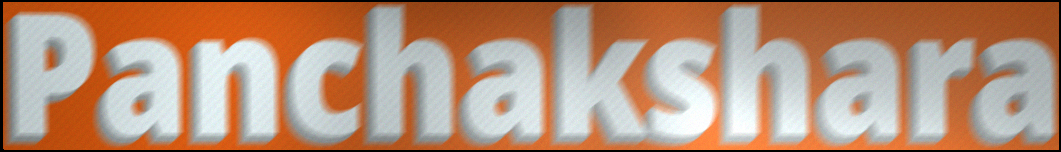
Panchakshara